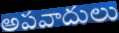
అపవాదులు